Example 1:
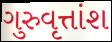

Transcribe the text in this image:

ગુરુવૃત્તાંશ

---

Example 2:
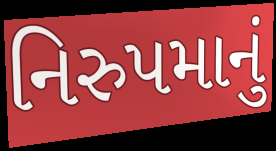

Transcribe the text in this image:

નિરુપમાનું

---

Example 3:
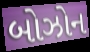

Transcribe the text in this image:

બોઝોન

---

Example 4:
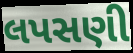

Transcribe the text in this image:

લપસણી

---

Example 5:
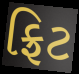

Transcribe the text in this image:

ફ્રિટ